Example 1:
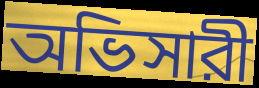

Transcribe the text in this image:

অভিসারী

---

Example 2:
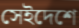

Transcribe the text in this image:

সেইদেশে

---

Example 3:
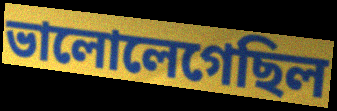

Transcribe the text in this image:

ভালোলেগেছিল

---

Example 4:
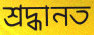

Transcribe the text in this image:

শ্রদ্ধানত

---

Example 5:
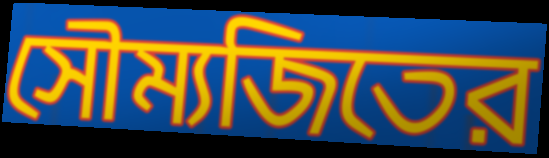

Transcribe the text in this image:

সৌম্যজিতের